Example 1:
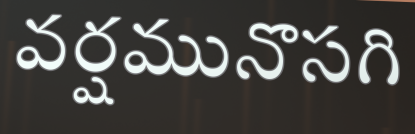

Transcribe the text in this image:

వర్షమునొసగి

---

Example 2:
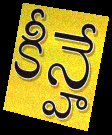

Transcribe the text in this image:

కీన్హే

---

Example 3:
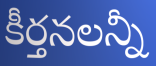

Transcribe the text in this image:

కీర్తనలన్నీ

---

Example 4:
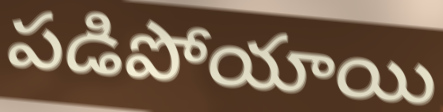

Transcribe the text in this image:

పడిపోయాయి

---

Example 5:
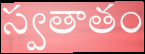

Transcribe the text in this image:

స్వతాతం